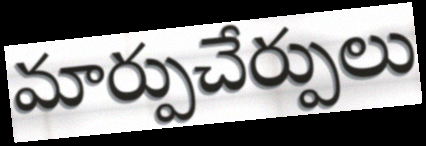
మార్పుచేర్పులు